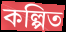
কল্পিত